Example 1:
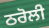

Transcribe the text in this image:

ਠਰੋਲੀ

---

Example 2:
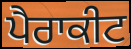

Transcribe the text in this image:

ਪੈਰਾਕੀਟ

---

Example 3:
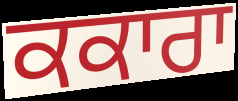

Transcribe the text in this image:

ਕਕਾਰਾ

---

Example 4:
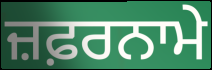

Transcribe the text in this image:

ਜ਼ਫ਼ਰਨਾਮੇ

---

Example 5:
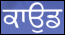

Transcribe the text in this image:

ਕਾਉਡ